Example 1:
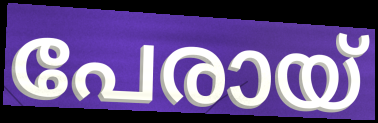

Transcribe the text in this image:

പേരായ്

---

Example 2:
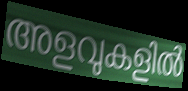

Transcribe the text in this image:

അളവുകളിൽ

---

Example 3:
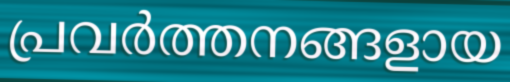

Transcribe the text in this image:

പ്രവർത്തനങ്ങളായ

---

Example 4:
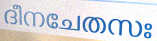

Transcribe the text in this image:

ദീനചേതസഃ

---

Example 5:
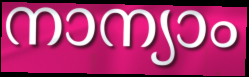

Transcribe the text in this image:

നാന്യാം